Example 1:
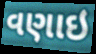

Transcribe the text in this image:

વણાઇ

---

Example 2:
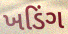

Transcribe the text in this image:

ખડિંગ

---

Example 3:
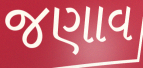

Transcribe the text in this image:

જણાવ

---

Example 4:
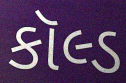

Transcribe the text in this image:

કૉલ્ડ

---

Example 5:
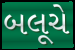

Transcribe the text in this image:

બલૂચે